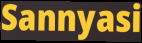
Sannyasi